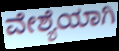
ವೇಶ್ಯೆಯಾಗಿ